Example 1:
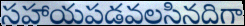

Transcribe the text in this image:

సహాయపడవలసినదిగా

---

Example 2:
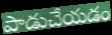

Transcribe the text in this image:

పాడుచేయడం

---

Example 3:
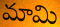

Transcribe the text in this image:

మామి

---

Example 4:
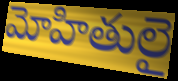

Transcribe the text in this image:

మోహితులై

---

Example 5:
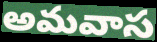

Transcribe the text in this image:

అమవాస